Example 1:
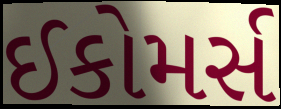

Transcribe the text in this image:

ઈકોમર્સ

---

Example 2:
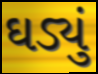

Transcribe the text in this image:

ઘડ્યું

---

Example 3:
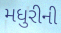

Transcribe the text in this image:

મધુરીની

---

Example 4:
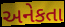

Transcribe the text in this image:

અનેકતા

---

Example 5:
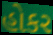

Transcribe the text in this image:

હોકર